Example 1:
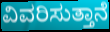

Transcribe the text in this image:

ವಿವರಿಸುತ್ತಾನೆ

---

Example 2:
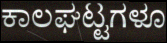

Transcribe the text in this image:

ಕಾಲಘಟ್ಟಗಳೂ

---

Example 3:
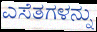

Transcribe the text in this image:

ಎಸೆತಗಳನ್ನು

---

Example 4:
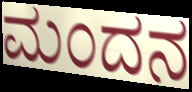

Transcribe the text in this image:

ಮಂದನ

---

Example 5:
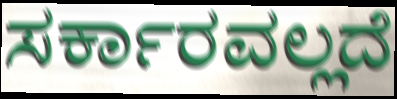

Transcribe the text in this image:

ಸರ್ಕಾರವಲ್ಲದೆ